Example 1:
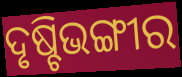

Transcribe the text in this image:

ଦୃଷ୍ଚିଭଙ୍ଗୀର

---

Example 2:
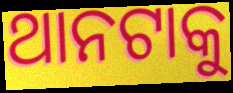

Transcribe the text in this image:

ଥାନଟାକୁ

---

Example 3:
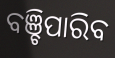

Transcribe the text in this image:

ବଞ୍ଚିପାରିବ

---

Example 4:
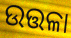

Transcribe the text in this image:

ଉତ୍ତଳା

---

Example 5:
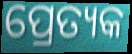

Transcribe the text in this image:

ପ୍ରେତ୍ୟକ